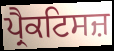
ਪ੍ਰੈਕਟਿਸਜ਼